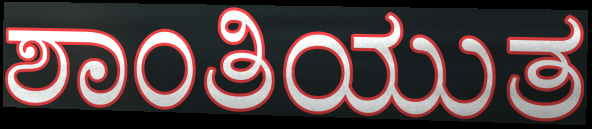
ಶಾಂತಿಯುತ